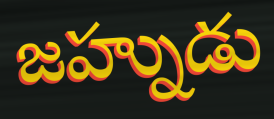
జహ్నుడు